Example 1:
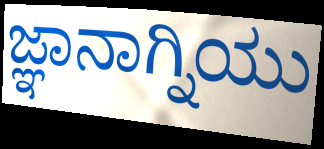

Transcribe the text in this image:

ಜ್ಞಾನಾಗ್ನಿಯು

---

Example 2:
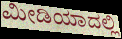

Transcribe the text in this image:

ಮೀಡಿಯಾದಲ್ಲಿ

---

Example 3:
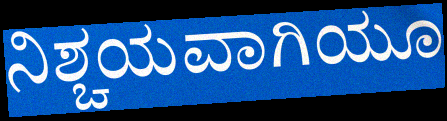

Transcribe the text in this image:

ನಿಶ್ಚಯವಾಗಿಯೂ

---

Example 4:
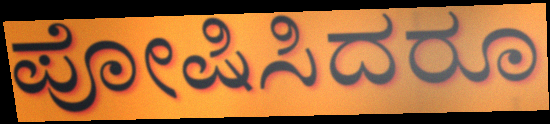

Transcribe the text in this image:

ಪೋಷಿಸಿದರೂ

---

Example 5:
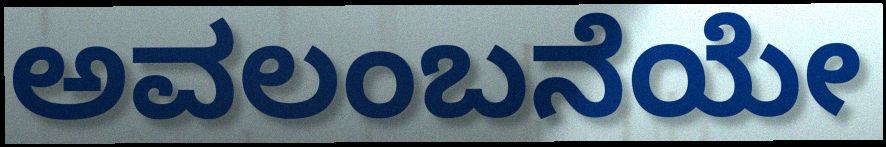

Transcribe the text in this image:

ಅವಲಂಬನೆಯೇ